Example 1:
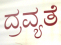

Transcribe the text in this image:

ದ್ರವ್ಯತೆ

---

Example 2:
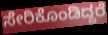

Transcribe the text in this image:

ಸೇರಿಕೊಂಡಿದ್ದರೆ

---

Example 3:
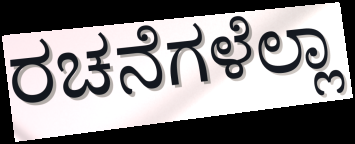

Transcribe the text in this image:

ರಚನೆಗಳೆಲ್ಲಾ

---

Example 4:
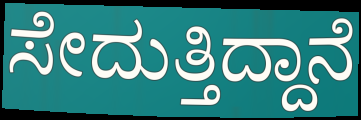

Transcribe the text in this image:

ಸೇದುತ್ತಿದ್ದಾನೆ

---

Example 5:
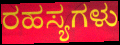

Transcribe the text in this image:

ರಹಸ್ಯಗಳು